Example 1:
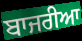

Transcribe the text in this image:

ਬਾਜਰੀਆ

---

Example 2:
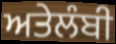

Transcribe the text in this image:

ਅਤੇਲੰਬੀ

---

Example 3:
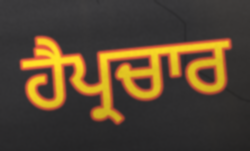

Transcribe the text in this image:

ਹੈਪ੍ਰਚਾਰ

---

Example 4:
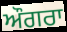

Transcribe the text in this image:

ਔਗਰਾ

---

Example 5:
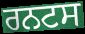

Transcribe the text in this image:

ਰਨਟਸ